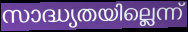
സാദ്ധ്യതയില്ലെന്ന്